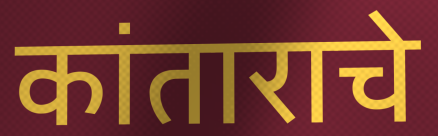
कांताराचे